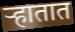
ऱ्हातात